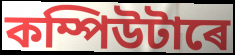
কম্পিউটাৰে